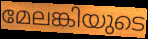
മേലങ്കിയുടെ